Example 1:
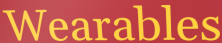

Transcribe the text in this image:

Wearables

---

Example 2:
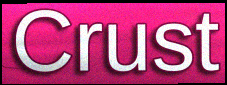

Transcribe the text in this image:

Crust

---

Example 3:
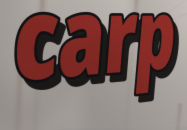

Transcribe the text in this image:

carp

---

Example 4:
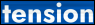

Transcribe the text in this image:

tension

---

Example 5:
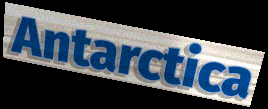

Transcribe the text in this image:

Antarctica